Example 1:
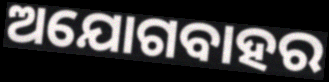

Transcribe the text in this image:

ଅଯୋଗବାହର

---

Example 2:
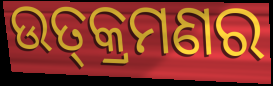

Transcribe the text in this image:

ଉତ୍‍କ୍ରମଣର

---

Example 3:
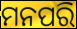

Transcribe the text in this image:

ମନପରି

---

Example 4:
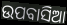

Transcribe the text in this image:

ଉପବାସିଆ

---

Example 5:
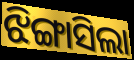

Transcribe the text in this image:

ଝିଙ୍ଗାସିଲା